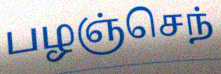
பழஞ்செந்